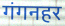
गंगनहर